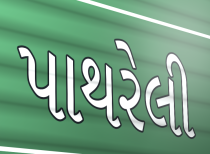
પાથરેલી